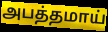
அபத்தமாய்